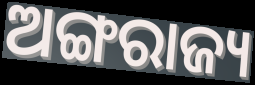
ଅଙ୍ଗରାଜ୍ୟ